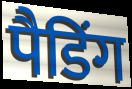
पैडिंग